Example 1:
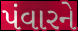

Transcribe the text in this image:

પંવારને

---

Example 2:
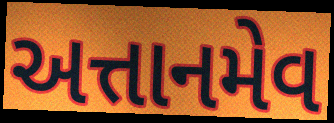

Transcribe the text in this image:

અત્તાનમેવ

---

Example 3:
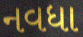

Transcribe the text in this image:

નવધા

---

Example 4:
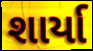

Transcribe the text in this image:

શાર્યા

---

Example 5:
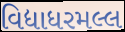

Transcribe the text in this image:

વિદ્યાધરમલ્લ